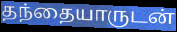
தந்தையாருடன்